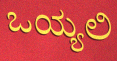
ಒಯ್ಯಲಿ